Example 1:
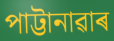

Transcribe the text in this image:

পাট্টানাৱাৰ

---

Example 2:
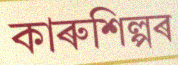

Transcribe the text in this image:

কাৰুশিল্পৰ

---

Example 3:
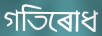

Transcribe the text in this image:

গতিৰোধ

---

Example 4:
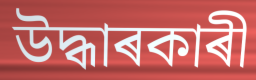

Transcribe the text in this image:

উদ্ধাৰকাৰী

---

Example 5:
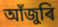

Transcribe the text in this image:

আঁজুৰি